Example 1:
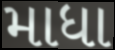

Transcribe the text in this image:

માધા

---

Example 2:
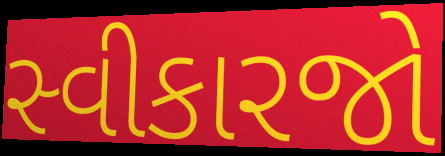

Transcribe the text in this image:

સ્વીકારજો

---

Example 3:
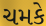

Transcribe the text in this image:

ચમકે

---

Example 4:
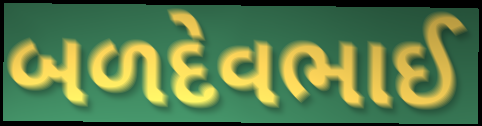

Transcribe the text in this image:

બળદેવભાઈ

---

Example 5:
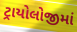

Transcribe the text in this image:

ટ્રાયોલોજીમાં